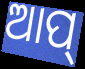
ଆପ୍